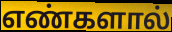
எண்களால்